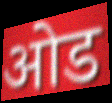
ओड